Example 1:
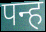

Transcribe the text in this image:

पन्ह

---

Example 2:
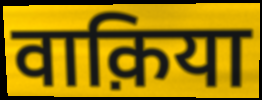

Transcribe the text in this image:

वाक़िया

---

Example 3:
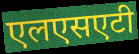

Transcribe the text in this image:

एलएसएटी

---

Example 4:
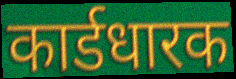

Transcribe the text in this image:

कार्डधारक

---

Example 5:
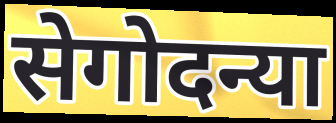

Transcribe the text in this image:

सेगोदन्या